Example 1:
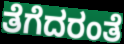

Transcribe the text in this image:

ತೆಗೆದರಂತೆ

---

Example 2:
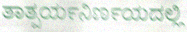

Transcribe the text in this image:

ತಾತ್ಪರ್ಯನಿರ್ಣಯದಲ್ಲಿ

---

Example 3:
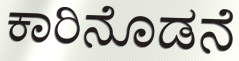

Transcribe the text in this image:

ಕಾರಿನೊಡನೆ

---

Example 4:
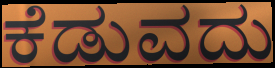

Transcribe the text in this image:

ಕೆಡುವದು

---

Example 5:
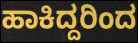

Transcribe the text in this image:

ಹಾಕಿದ್ದರಿಂದ